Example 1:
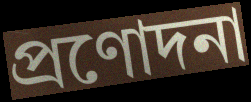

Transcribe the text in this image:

প্রণোদনা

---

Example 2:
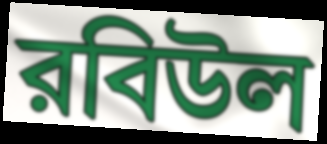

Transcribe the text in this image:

রবিউল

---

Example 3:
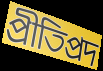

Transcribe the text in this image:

প্রীতিপ্রদ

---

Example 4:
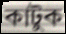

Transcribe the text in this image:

কাটুক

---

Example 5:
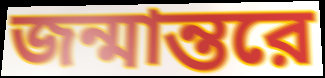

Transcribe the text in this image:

জন্মান্তরে